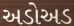
અડોઅડ